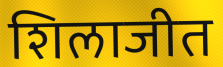
शिलाजीत